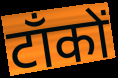
टाँकों